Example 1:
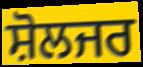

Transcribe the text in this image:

ਸ਼ੋਲਜਰ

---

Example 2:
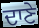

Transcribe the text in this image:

ਦਾਣੇ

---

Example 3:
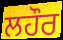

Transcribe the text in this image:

ਲਹੌਰ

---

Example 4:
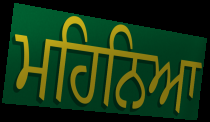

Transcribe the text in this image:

ਮਹਿਨਿਆ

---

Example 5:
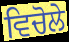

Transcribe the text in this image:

ਵਿਚੋਲੇ